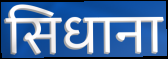
सिधाना